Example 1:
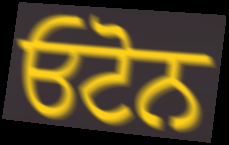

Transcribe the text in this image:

ਓਟੋਨ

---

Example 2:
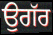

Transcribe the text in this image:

ਉਗੱਰ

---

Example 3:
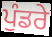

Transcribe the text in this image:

ਪੁੰਡਰੇ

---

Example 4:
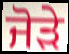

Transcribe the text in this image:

ਜੋਡ਼ੇ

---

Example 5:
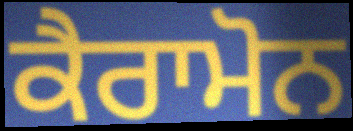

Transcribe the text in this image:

ਕੈਰਾਮੋਨ